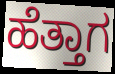
ಹೆತ್ತಾಗ